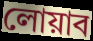
লোয়াব